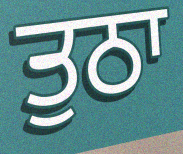
ਤੁਠਾ